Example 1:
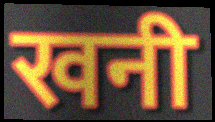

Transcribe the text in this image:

खनी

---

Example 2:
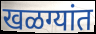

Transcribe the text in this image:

खळग्यांत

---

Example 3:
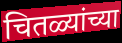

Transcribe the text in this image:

चितळ्यांच्या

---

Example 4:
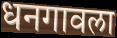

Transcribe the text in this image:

धनगावला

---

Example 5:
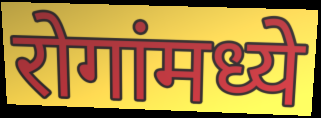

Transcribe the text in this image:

रोगांमध्ये